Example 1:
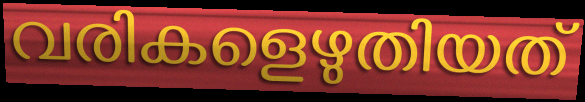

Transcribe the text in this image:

വരികളെഴുതിയത്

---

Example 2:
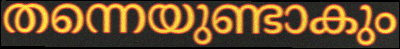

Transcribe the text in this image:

തന്നെയുണ്ടാകും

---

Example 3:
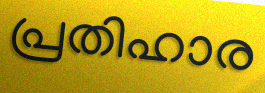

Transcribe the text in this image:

പ്രതിഹാര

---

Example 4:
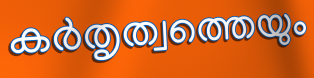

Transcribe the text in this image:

കർതൃത്വത്തെയും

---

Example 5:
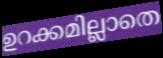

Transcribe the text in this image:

ഉറക്കമില്ലാതെ